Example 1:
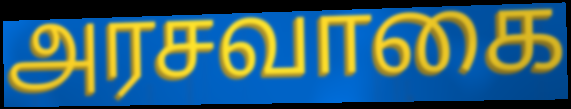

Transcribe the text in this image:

அரசவாகை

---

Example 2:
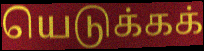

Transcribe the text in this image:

யெடுக்கக்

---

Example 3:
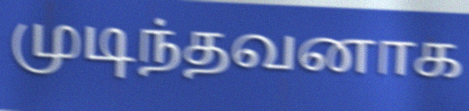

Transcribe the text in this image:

முடிந்தவனாக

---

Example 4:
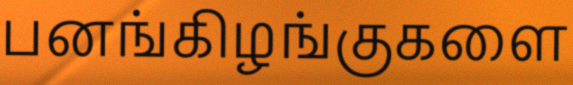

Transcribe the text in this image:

பனங்கிழங்குகளை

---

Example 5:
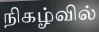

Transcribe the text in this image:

நிகழ்வில்